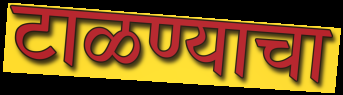
टाळण्याचा